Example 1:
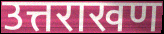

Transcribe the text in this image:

उत्तराखण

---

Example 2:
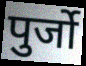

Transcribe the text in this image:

पुर्जो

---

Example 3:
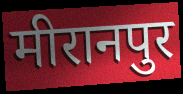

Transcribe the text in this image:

मीरानपुर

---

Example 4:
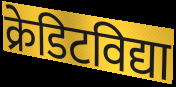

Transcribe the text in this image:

क्रेडिटविद्या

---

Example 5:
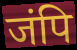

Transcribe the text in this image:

जंपि